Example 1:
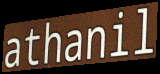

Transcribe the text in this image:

athanil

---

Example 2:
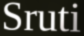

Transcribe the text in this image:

Sruti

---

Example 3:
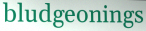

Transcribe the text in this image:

bludgeonings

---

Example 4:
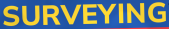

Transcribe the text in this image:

SURVEYING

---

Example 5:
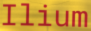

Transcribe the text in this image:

Ilium